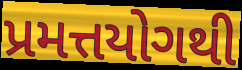
પ્રમત્તયોગથી